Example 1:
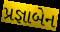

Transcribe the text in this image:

પ્રજ્ઞાબેન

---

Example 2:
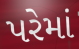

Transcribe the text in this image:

પરેમાં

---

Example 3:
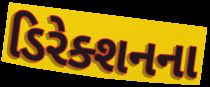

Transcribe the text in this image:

ડિરેક્શનના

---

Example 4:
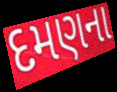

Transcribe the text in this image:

દમણના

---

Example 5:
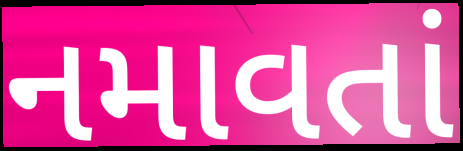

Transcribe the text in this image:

નમાવતાં